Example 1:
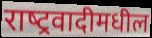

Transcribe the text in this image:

राष्ट्रवादीमधील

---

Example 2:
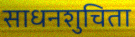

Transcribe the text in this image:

साधनशुचिता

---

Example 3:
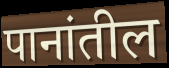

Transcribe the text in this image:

पानांतील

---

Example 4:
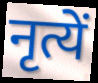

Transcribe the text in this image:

नृत्यें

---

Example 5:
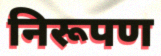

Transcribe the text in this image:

निरूपण